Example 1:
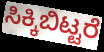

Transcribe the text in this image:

ಸಿಕ್ಕಿಬಿಟ್ಟರೆ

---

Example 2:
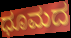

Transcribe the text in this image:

ಧೂಮದ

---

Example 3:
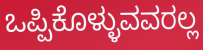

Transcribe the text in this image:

ಒಪ್ಪಿಕೊಳ್ಳುವವರಲ್ಲ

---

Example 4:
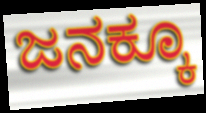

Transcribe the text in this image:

ಜನಕ್ಕೂ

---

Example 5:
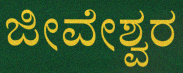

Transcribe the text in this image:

ಜೀವೇಶ್ವರ